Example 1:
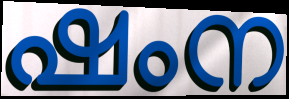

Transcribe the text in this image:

ഷംന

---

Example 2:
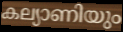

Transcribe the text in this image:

കല്യാണിയും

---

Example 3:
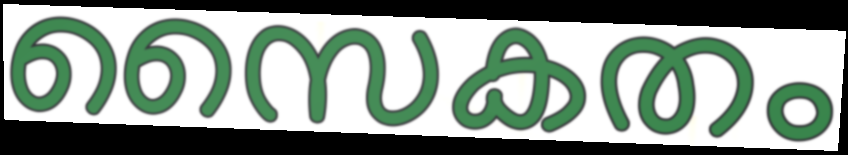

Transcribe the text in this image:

സൈകതം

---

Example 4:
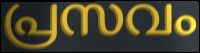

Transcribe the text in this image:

പ്രസവം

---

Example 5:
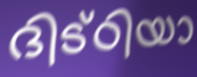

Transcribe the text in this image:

ദിട്ഠിയാ